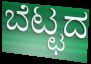
ಬೆಟ್ಟದ